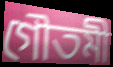
গৌতমী